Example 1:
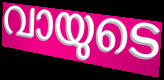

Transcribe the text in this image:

വായുടെ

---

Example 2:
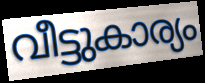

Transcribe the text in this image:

വീട്ടുകാര്യം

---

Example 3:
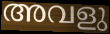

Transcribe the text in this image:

അവളു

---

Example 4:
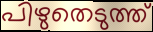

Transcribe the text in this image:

പിഴുതെടുത്ത്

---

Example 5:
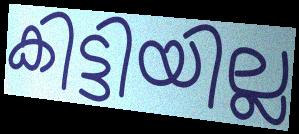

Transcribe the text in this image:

കിട്ടിയില്ല